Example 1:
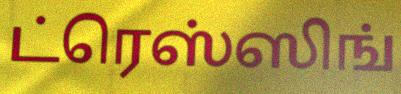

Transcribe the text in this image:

ட்ரெஸ்ஸிங்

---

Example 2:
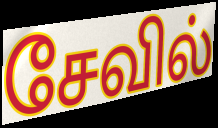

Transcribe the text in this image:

சேவில்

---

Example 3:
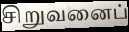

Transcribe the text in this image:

சிறுவனைப்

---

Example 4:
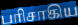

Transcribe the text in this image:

பரிசாகிய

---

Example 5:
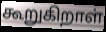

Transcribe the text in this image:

கூறுகிறாள்